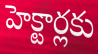
హెక్టార్లకు